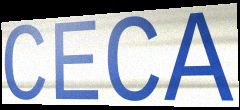
CECA